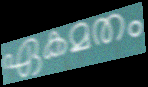
ഏകമതം